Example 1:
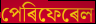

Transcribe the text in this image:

পেৰিফেৰেল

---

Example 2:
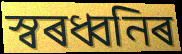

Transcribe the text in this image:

স্বৰধ্বনিৰ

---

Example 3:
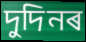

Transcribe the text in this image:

দুদিনৰ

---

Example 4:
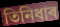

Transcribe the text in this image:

তিনিধাৰ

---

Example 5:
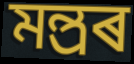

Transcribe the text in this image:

মন্ত্ৰৰ